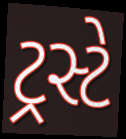
ટ્રસ્ટે